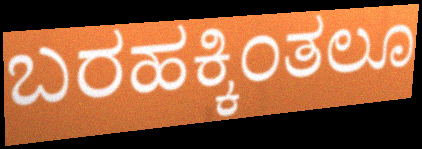
ಬರಹಕ್ಕಿಂತಲೂ